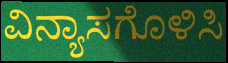
ವಿನ್ಯಾಸಗೊಳಿಸಿ